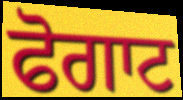
ਫੋਗਾਟ